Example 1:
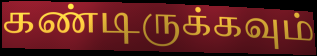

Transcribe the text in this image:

கண்டிருக்கவும்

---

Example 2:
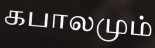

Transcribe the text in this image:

கபாலமும்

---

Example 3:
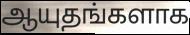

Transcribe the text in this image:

ஆயுதங்களாக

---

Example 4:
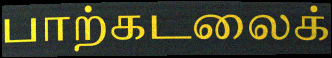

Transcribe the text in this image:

பாற்கடலைக்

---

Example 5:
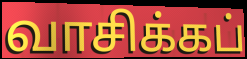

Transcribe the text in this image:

வாசிக்கப்